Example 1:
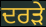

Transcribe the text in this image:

ਦਰੜੇ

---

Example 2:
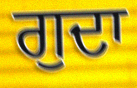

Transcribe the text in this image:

ਗੁਦਾ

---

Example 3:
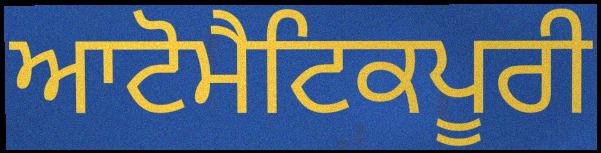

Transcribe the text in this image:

ਆਟੋਮੈਟਿਕਪੂਰੀ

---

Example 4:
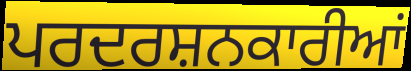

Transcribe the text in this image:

ਪਰਦਰਸ਼ਨਕਾਰੀਆਂ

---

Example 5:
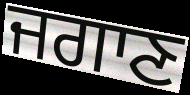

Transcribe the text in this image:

ਜਗਾਣ